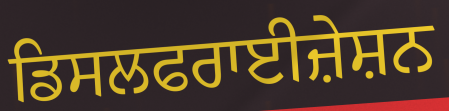
ਡਿਸਲਫਰਾਈਜ਼ੇਸ਼ਨ